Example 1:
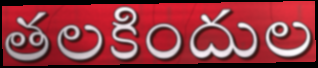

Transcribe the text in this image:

తలకిందుల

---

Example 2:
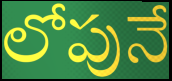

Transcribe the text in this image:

లోపునే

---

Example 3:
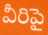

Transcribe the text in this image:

వీరిపై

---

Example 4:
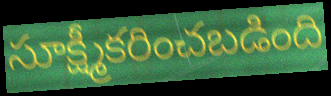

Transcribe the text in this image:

సూక్ష్మీకరించబడింది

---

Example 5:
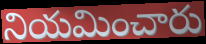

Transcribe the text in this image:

నియమించారు